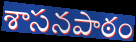
శాసనపాఠం